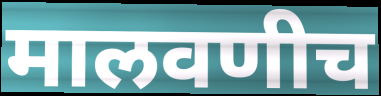
मालवणीच